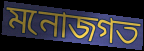
মনোজগত